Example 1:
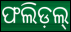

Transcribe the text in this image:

ଫଲିଡ଼ଲ୍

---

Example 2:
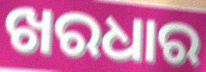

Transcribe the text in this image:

ଖରଧାର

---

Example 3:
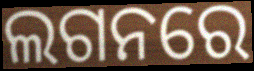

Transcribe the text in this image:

ଲଗନରେ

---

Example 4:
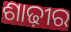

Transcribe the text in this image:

ଶାଢ଼ୀର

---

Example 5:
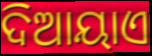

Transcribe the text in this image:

ଦିଆୟାଏ